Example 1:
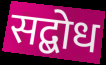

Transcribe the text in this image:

सद्बोध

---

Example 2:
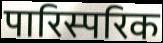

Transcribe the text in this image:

पारिस्परिक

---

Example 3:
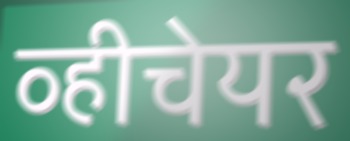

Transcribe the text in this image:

व्हीचेयर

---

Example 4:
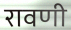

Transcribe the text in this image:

रावणी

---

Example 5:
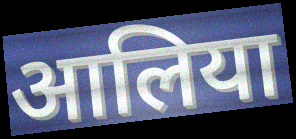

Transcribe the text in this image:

आलिया